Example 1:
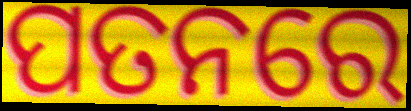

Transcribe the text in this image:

ପତନରେ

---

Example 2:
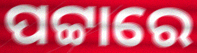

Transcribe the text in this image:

ପଟ୍ଟାରେ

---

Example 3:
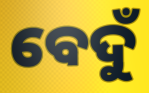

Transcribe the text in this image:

ବେଦୁଁ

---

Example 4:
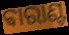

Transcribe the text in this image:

ଵାରାଣ୍ଟ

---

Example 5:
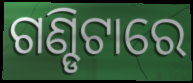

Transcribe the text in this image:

ଗଣ୍ଡିଟାରେ